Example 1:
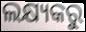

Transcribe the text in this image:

ଲକ୍ଷ୍ୟକରୁ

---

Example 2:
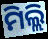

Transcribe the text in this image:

ମିଲ୍ଲି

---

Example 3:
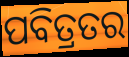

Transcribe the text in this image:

ପବିତ୍ରତର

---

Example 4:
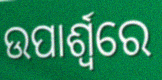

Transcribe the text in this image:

ଉପାର୍ଶ୍ଵରେ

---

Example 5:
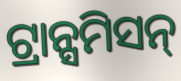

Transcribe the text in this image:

ଟ୍ରାନ୍ସମିସନ୍